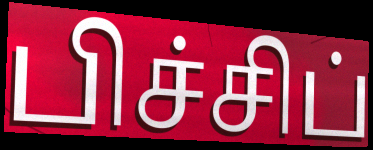
பிச்சிப்